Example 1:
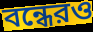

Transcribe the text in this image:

বন্ধেরও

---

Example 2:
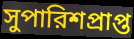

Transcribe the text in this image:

সুপারিশপ্রাপ্ত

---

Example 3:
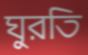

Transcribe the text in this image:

ঘুরতি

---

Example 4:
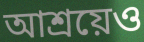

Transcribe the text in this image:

আশ্রয়েও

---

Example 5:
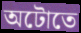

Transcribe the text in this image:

অটোতে